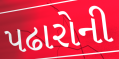
પઢારોની